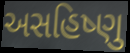
અસહિષ્ણુ